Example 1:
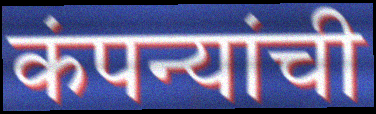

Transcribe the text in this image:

कंपन्यांची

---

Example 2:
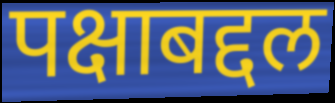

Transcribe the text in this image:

पक्षाबद्दल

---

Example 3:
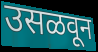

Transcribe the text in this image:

उसळवून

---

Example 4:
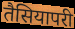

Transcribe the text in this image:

तैसियापरी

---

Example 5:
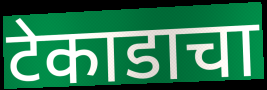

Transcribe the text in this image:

टेकाडाचा